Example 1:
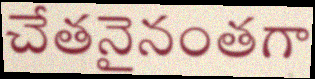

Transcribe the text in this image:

చేతనైనంతగా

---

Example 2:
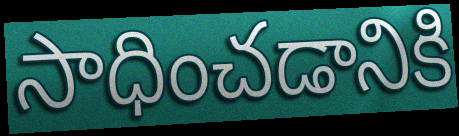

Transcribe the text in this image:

సాధించడానికి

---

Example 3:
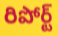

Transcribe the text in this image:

రిపోర్ట్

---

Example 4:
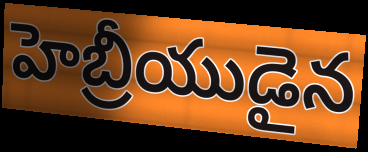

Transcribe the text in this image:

హెబ్రీయుడైన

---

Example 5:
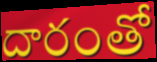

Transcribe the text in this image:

దారంతో